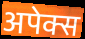
अपेक्स